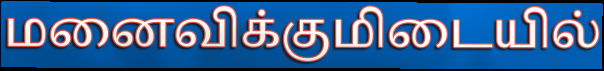
மனைவிக்குமிடையில்